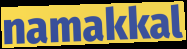
namakkal